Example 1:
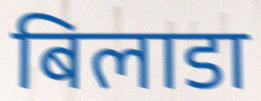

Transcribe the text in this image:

बिलाडा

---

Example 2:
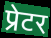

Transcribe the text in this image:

प्रेटर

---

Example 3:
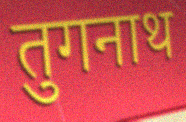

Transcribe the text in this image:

तुगनाथ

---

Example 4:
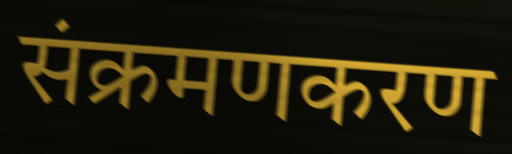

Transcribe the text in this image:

संक्रमणकरण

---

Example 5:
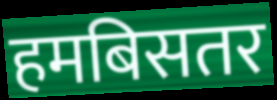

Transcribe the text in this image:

हमबिसतर